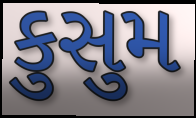
કુસુમ